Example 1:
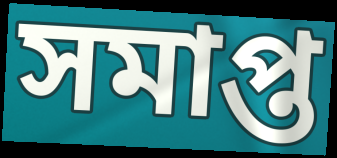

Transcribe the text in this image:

সমাপ্ত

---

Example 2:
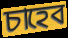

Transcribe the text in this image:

চাহেব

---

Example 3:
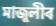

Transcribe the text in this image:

মাজুলীৰ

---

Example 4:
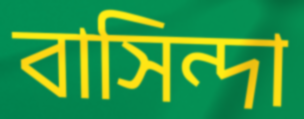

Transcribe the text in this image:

বাসিন্দা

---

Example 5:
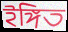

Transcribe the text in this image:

ইঙ্গিত